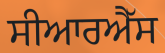
ਸੀਆਰਐੱਸ